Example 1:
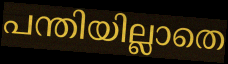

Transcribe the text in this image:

പന്തിയില്ലാതെ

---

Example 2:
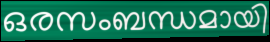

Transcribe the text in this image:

ഒരസംബന്ധമായി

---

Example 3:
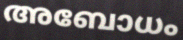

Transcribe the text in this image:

അബോധം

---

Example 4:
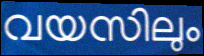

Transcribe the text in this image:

വയസിലും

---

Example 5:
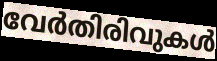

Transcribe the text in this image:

വേർതിരിവുകൾ